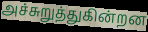
அச்சுறுத்துகின்றன